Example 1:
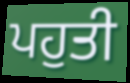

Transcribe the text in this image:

ਪਹੁਤੀ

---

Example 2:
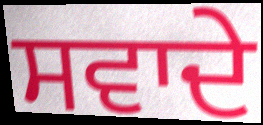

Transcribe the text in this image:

ਸਵਾਦੇ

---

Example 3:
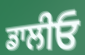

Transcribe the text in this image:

ਡਾਲੀਓ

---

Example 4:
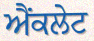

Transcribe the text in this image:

ਐਂਕਲੇਟ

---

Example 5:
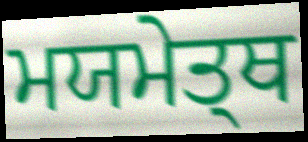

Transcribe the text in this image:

ਮਯਮੇਤ੍ਥ